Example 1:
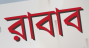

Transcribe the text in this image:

রাবাব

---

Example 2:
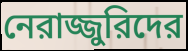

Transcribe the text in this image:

নেরাজ্জুরিদের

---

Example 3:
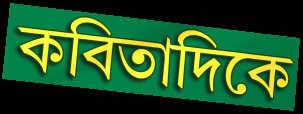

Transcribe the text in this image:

কবিতাদিকে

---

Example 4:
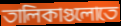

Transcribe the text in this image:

তালিকাগুলোতে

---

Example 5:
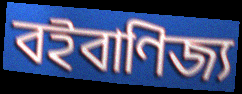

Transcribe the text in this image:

বইবাণিজ্য